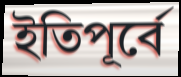
ইতিপূৰ্বে